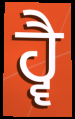
ਹ੍ਵੈ